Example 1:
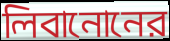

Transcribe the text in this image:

লিবানোনের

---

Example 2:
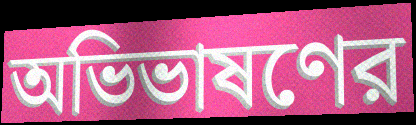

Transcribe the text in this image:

অভিভাষণের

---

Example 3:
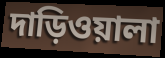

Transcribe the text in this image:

দাড়িওয়ালা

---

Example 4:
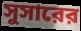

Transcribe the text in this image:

সুসারের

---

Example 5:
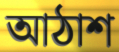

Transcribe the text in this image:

আঠাশ